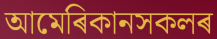
আমেৰিকানসকলৰ